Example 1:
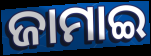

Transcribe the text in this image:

ଜାମାଇ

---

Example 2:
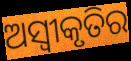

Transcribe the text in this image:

ଅସ୍ୱୀକୃତିର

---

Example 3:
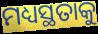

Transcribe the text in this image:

ମଧ୍ୟସ୍ଥତାକୁ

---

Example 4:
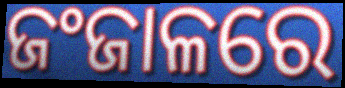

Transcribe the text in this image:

ଜଂଜାଳରେ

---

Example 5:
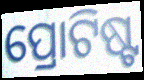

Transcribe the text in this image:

ପ୍ରୋଟିଷ୍ଟ